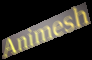
Animesh